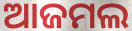
ଆଜମଲ